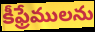
కీఫ్రేములను